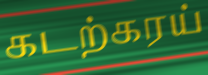
கடற்கரய்